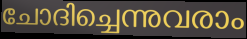
ചോദിച്ചെന്നുവരാം